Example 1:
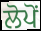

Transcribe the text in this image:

ਲੋਪੋਂ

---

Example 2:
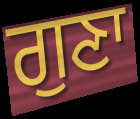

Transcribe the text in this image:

ਗੁਣਾ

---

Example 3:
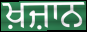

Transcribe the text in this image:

ਖ਼ਜ਼ਾਨ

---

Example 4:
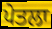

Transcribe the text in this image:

ਪੇਤਲਾ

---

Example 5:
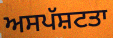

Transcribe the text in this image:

ਅਸਪੱਸ਼ਟਤਾ